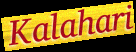
Kalahari